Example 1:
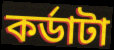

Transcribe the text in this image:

কর্ডাটা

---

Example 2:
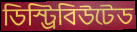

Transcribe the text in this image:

ডিস্ট্রিবিউটেড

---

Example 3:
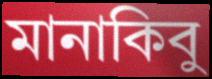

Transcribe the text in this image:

মানাকিবু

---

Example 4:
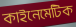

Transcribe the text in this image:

কাইনেমেটিক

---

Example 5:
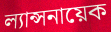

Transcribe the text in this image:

ল্যান্সনায়েক